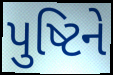
પુષ્ટિને